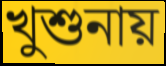
খুশুনায়